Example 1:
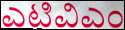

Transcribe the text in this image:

ಎಟಿವಿಎಂ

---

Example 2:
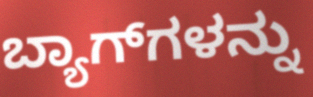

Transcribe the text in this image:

ಬ್ಯಾಗ್‌ಗಳನ್ನು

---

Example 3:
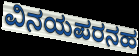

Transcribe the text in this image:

ವಿನಯಪರನಹ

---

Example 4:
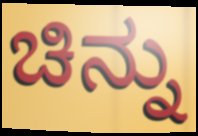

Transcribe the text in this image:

ಚಿನ್ನು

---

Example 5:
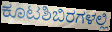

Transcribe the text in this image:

ಕೂಟಶಿಬಿರಗಳಲ್ಲಿ